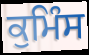
ਕੁਮਿੰਸ